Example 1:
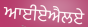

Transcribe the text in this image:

ਆਈਏਐਲਏ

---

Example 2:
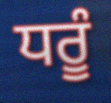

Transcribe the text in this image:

ਧਰੂੰ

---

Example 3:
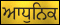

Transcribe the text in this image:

ਆਧੁਨਿਕ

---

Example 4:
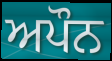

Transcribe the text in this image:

ਅਪੌਨ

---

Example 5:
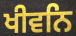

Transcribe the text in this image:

ਖੀਵਨਿ